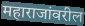
महाराजांवरील